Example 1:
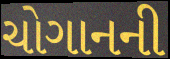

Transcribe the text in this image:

ચોગાનની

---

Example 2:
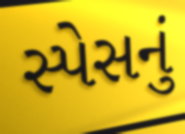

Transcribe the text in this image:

સ્પેસનું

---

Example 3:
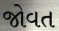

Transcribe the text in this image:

જોવત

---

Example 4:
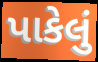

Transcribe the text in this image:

પાકેલું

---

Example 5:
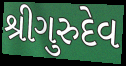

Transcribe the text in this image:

શ્રીગુરુદેવ